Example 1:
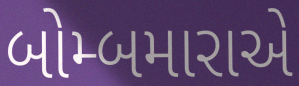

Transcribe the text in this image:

બોમ્બમારાએ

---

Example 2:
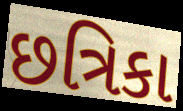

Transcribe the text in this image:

છત્રિકા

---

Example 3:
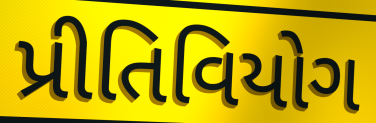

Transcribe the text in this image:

પ્રીતિવિયોગ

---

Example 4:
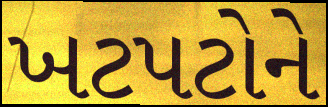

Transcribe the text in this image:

ખટપટોને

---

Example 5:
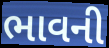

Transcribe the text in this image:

ભાવની